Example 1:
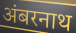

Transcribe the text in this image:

अंबरनाथ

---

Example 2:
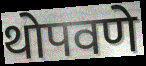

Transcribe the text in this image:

थोपवणे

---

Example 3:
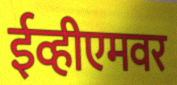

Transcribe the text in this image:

ईव्हीएमवर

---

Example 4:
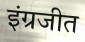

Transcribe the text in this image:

इंग्रजीत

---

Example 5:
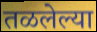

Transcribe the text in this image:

तळलेल्या